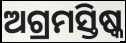
ଅଗ୍ରମସ୍ତିଷ୍କ